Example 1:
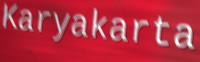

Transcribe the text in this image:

Karyakarta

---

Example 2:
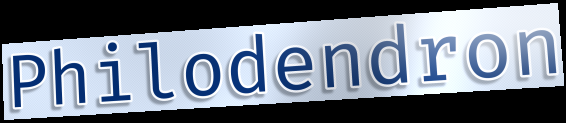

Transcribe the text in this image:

Philodendron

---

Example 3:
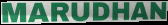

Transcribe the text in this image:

MARUDHAN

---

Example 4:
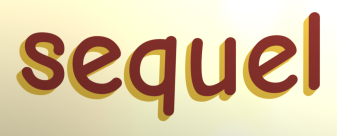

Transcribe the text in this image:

sequel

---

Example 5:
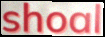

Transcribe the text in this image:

shoal